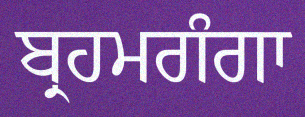
ਬ੍ਰਹਮਗੰਗਾ